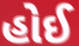
હોઈ